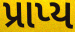
પ્રાપ્ય